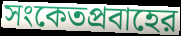
সংকেতপ্রবাহের